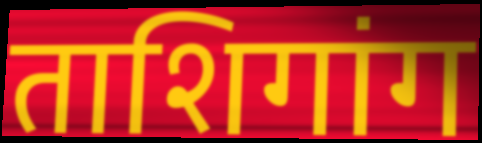
ताशिगांग